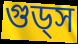
গুড্স